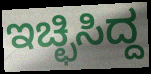
ಇಚ್ಛಿಸಿದ್ದ